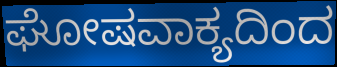
ಘೋಷವಾಕ್ಯದಿಂದ